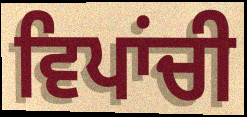
ਵਿਪਾਂਚੀ